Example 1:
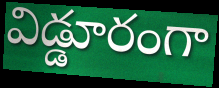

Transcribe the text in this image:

విడ్డూరంగా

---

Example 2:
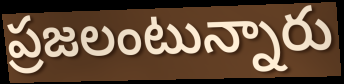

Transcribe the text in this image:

ప్రజలంటున్నారు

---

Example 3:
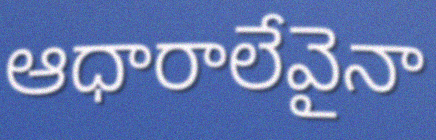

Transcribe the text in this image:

ఆధారాలేవైనా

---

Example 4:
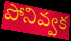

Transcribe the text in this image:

పోనివ్వక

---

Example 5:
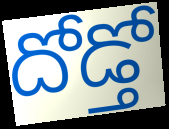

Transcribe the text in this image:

దోడ్తో